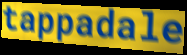
tappadale